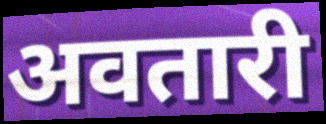
अवतारी